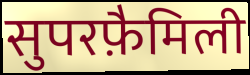
सुपरफ़ैमिली